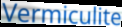
Vermiculite